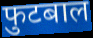
फुटबाल